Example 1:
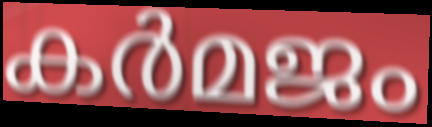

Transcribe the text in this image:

കർമജം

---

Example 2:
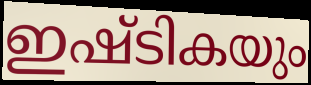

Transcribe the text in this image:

ഇഷ്ടികയും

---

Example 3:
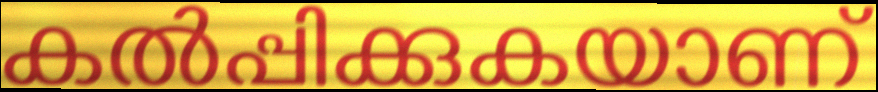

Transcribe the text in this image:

കൽപ്പിക്കുകയാണ്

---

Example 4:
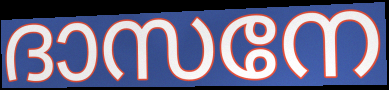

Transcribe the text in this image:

ദാസനേ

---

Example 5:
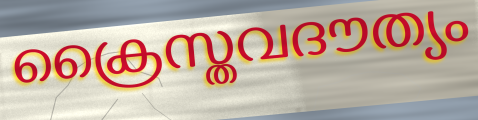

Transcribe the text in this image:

ക്രൈസ്തവദൗത്യം